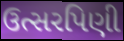
ઉત્સરપિણી